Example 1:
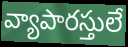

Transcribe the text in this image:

వ్యాపారస్తులే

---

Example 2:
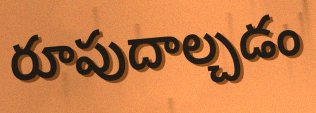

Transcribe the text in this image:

రూపుదాల్చడం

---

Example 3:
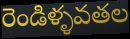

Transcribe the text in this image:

రెండిళ్ళవతల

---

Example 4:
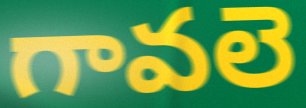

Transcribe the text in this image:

గావలె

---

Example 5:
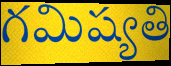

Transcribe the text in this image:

గమిష్యతి